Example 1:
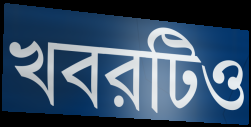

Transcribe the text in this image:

খবরটিও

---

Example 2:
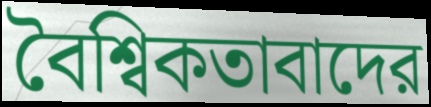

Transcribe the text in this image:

বৈশ্বিকতাবাদের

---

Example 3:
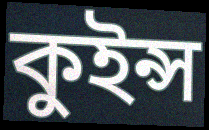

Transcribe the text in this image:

কুইন্স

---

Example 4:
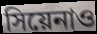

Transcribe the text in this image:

সিয়েনাও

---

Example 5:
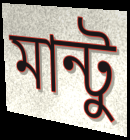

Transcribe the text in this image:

মান্টু